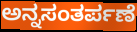
ಅನ್ನಸಂತರ್ಪಣೆ